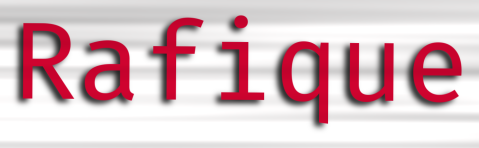
Rafique